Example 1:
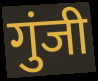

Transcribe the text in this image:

गुंजी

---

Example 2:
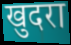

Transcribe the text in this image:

खुदरा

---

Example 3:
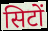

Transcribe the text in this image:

सिटों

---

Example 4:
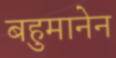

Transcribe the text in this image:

बहुमानेन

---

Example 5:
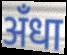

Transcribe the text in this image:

अँधा